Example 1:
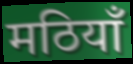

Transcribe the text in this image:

मठियाँ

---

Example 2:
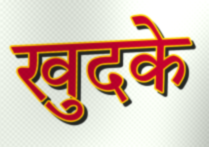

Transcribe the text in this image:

खुदके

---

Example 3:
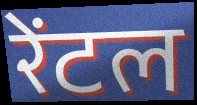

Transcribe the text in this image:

रेंटल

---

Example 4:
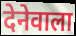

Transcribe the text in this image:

देनेवाला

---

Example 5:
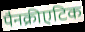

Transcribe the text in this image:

पैनक्रीएटिक